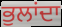
ਭੁਲਾਂਦਾ